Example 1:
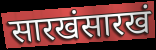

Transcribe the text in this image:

सारखंसारखं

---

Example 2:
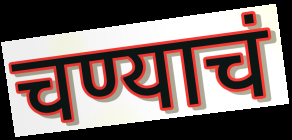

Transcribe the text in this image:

चण्याचं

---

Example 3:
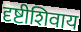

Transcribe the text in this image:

दृष्टीशिवाय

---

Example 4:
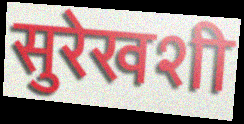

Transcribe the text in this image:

सुरेखशी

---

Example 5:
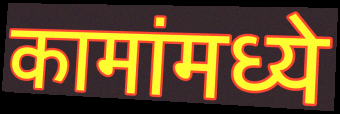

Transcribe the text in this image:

कामांमध्ये